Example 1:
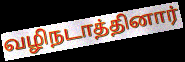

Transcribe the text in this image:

வழிநடாத்தினார்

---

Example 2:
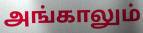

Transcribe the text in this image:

அங்காலும்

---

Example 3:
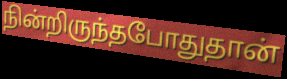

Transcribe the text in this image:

நின்றிருந்தபோதுதான்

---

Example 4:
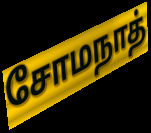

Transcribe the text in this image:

சோமநாத்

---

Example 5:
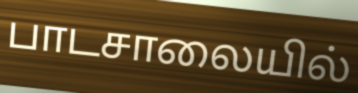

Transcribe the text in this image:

பாடசாலையில்